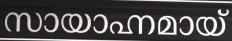
സായാഹ്നമായ്